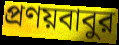
প্রণয়বাবুর